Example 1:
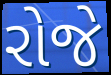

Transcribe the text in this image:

રોજે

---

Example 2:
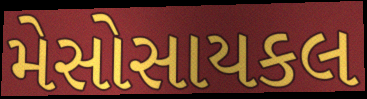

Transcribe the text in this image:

મેસોસાયકલ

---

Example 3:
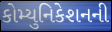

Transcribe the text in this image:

કોમ્યુનિકેશનની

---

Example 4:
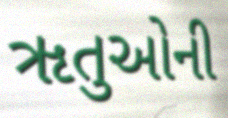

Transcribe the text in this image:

ૠતુઓની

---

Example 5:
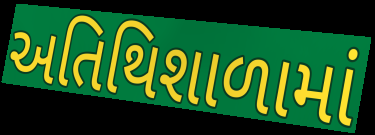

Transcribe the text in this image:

અતિથિશાળામાં